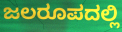
ಜಲರೂಪದಲ್ಲಿ